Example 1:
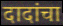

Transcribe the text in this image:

दादांचा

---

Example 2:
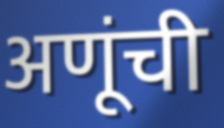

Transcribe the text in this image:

अणूंची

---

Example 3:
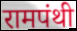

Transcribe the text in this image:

रामपंथी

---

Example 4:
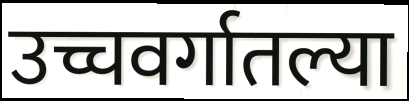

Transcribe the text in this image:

उच्चवर्गातल्या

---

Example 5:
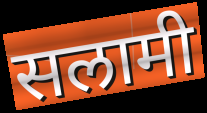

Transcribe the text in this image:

सलामी